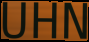
UHN